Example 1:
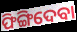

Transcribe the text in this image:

ଫିଙ୍ଗିଦେବା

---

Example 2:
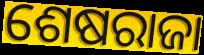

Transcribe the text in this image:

ଶେଷରାଜା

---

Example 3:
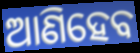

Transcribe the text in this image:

ଆଣିହେବ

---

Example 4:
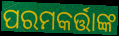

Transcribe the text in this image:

ପରମକର୍ତ୍ତାଙ୍କ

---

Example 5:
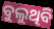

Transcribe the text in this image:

ବୁଲୁଥିବି